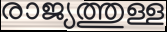
രാജ്യത്തുള്ള